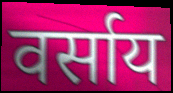
वर्साय